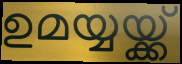
ഉമയ്യയ്ക്ക്